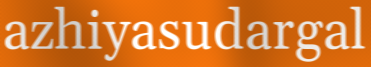
azhiyasudargal